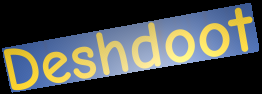
Deshdoot